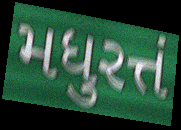
મધુરત્તં